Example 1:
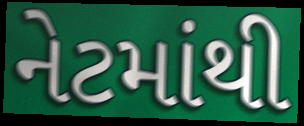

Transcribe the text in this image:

નેટમાંથી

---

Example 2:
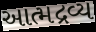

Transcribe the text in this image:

આત્મદ્રવ્ય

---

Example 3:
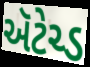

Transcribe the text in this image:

ઍટેચ્ડ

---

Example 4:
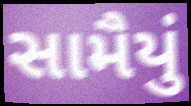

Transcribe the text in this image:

સામૈયું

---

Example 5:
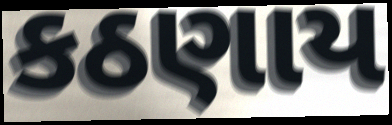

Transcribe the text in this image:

કઠણાય